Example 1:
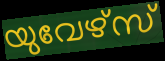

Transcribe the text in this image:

യുവേഴ്സ്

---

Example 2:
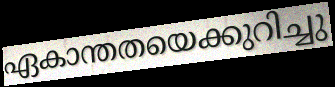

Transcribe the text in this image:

ഏകാന്തതയെക്കുറിച്ചു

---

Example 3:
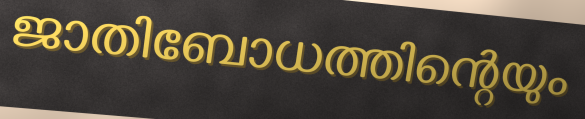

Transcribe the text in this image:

ജാതിബോധത്തിന്റെയും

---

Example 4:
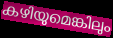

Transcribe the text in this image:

കഴിയുമെങ്കിലും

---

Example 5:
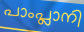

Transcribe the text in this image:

പാംപ്ലാനി